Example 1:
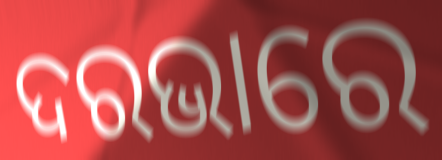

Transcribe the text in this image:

ଦରଭାରେ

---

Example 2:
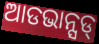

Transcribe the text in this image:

ଆଡଭାନ୍ସଡ୍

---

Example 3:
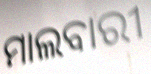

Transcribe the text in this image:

ମାଲବାରୀ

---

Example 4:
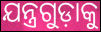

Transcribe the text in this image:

ଯନ୍ତ୍ରଗୁଡ଼ାକୁ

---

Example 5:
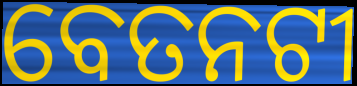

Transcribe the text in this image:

ବେତନଟୀ